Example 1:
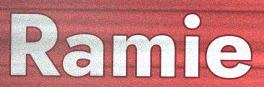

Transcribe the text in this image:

Ramie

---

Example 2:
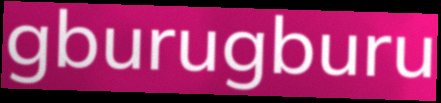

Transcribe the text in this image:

gburugburu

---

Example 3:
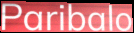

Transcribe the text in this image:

Paribalo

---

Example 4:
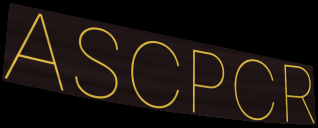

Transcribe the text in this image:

ASCPCR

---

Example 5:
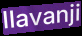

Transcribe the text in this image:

Ilavanji